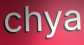
chya